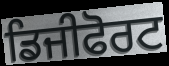
ਡਿਜੀਫੋਰਟ